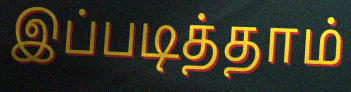
இப்படித்தாம்